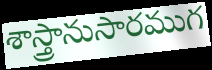
శాస్త్రానుసారముగ